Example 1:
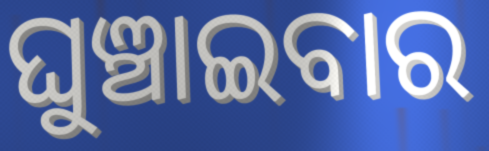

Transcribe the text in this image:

ଘୁଞ୍ଚାଇବାର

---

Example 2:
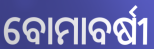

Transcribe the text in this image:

ବୋମାବର୍ଷୀ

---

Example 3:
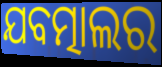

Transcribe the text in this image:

ଯବତ୍ମାଲର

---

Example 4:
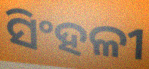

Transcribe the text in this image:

ସିଂହଳୀ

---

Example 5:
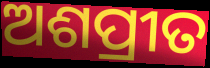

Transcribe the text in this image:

ଅଶପ୍ରୀତ